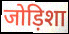
जोड़िशा